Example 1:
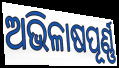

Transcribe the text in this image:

ଅଭିଳାଷପୂର୍ଣ୍ଣ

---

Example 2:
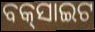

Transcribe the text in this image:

ବକ୍‌ସାଇଟ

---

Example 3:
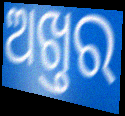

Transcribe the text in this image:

ଅଖ୍ତର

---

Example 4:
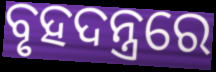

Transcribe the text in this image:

ବୃହଦନ୍ତ୍ରରେ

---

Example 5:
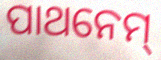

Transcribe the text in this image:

ପାଥନେମ୍